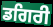
ਡਗਿਰੀ